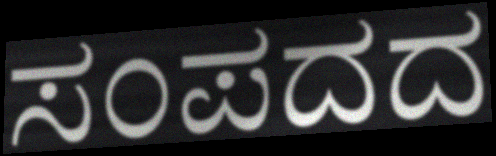
ಸಂಪದದ